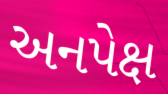
અનપેક્ષ